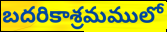
బదరికాశ్రమములో